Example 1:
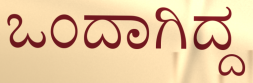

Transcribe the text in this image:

ಒಂದಾಗಿದ್ದ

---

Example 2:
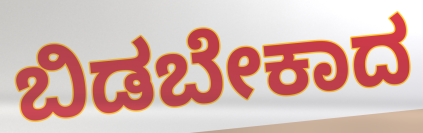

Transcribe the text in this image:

ಬಿಡಬೇಕಾದ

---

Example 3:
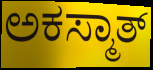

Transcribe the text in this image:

ಅಕಸ್ಮಾತ್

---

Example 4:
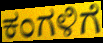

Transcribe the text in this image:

ಕಂಗಳಿಗೆ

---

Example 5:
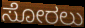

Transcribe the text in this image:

ಸೋರಲು